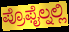
ಪ್ರೊಫೈಲ್ನಲ್ಲಿ